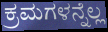
ಕ್ರಮಗಳನ್ನೆಲ್ಲ